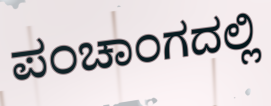
ಪಂಚಾಂಗದಲ್ಲಿ